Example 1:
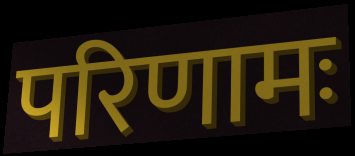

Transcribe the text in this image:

परिणामः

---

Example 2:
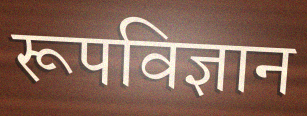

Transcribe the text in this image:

रूपविज्ञान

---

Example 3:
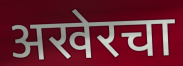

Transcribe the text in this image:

अखेरचा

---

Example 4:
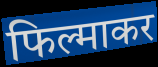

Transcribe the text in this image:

फिल्माकर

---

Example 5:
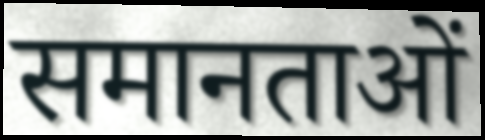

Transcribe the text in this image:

समानताओं